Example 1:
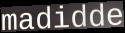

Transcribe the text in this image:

madidde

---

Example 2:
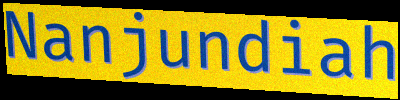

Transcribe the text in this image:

Nanjundiah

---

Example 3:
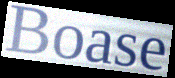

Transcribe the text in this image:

Boase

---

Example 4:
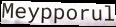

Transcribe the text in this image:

Meypporul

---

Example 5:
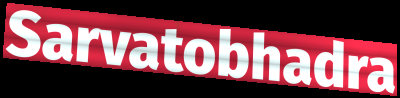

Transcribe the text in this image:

Sarvatobhadra